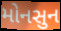
મોનસુન